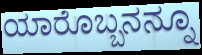
ಯಾರೊಬ್ಬನನ್ನೂ